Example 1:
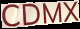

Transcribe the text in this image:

CDMX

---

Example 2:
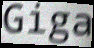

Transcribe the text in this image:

Giga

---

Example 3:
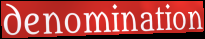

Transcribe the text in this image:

denomination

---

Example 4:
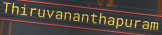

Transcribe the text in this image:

Thiruvananthapuram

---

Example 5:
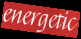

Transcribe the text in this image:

energetic